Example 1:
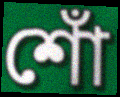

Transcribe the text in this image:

শোঁ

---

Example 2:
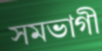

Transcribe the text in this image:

সমভাগী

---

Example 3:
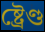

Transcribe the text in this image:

ষ্ট্ৰেণ্ড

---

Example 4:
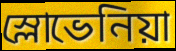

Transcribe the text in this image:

স্লোভেনিয়া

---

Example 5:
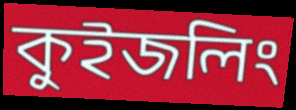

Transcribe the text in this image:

কুইজলিং